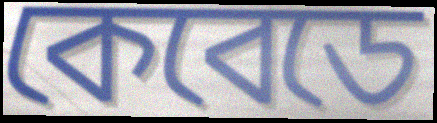
কেবেডে